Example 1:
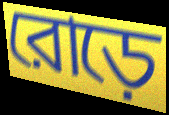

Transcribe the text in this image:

রোড়ে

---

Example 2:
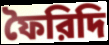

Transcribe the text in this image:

ফৈরিদি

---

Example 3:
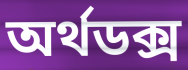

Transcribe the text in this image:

অর্থডক্স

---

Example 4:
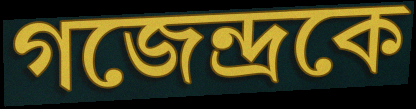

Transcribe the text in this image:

গজেন্দ্রকে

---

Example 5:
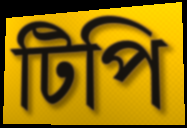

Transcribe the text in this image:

টিপি